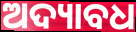
ଅଦ୍ୟାବଧ